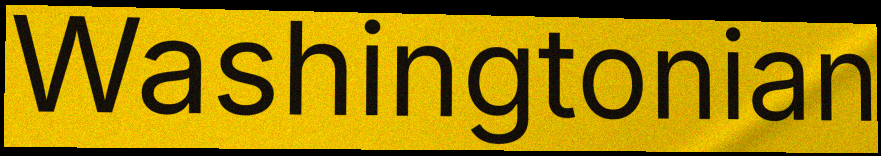
Washingtonian